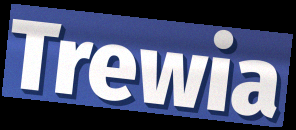
Trewia